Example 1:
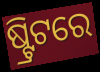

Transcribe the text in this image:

ଷ୍ଟ୍ରିଟରେ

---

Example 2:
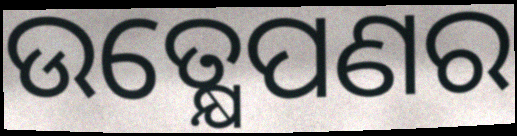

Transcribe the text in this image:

ଉତ୍କ୍ଷେପଣର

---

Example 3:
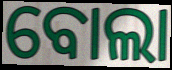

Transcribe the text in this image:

ବୋଲା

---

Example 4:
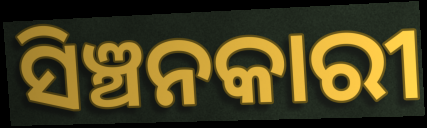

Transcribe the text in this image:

ସିଞ୍ଚନକାରୀ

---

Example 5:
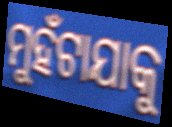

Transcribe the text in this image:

ମୁହଁଟାଯାକୁ